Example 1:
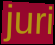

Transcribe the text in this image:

juri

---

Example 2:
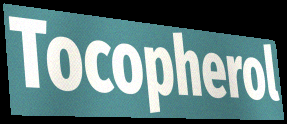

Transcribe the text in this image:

Tocopherol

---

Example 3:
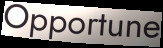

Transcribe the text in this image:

Opportune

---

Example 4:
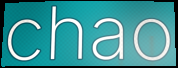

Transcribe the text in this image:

chao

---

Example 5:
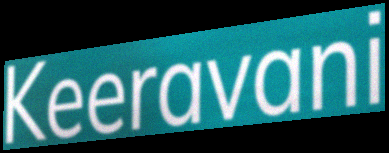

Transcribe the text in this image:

Keeravani